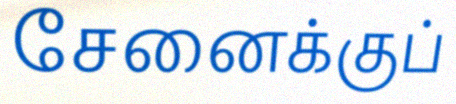
சேனைக்குப்